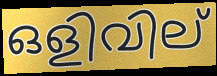
ഒളിവില്